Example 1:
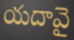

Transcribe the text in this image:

యదావై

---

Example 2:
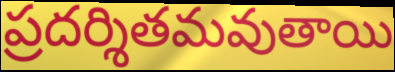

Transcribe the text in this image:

ప్రదర్శితమవుతాయి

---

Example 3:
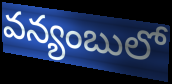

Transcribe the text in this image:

వన్యంబులో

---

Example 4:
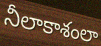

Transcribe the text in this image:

నీలాకాశంలా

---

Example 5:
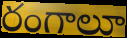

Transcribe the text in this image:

రంగాలూ